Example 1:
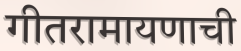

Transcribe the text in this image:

गीतरामायणाची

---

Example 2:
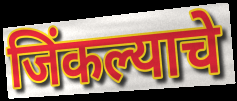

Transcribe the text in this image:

जिंकल्याचे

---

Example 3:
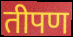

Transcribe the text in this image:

तीपण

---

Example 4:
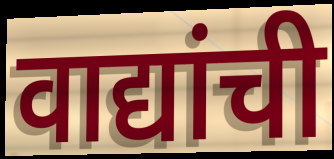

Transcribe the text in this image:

वाद्यांची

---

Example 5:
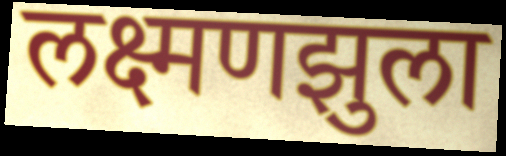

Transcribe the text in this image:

लक्ष्मणझुला